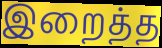
இறைத்த